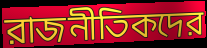
রাজনীতিকদের